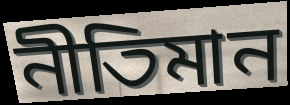
নীতিমান